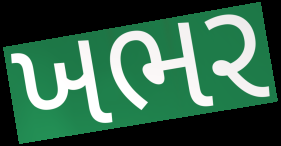
ખભર